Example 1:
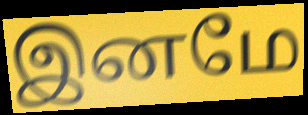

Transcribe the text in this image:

இனமே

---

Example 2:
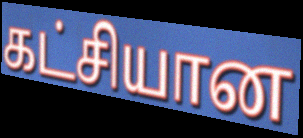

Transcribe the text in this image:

கட்சியான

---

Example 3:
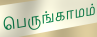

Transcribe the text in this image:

பெருங்காமம்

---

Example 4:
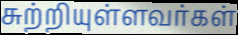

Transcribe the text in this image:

சுற்றியுள்ளவர்கள்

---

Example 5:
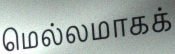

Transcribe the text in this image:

மெல்லமாகக்